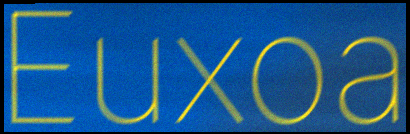
Euxoa